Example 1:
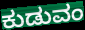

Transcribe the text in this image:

ಕುಡುವಂ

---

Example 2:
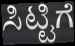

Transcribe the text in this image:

ಸಿಟ್ಟಿಗೆ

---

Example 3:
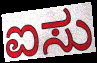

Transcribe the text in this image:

ಐಸು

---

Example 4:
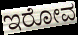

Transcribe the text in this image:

ಇರೋವ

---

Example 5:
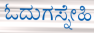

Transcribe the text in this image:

ಓದುಗಸ್ನೇಹಿ